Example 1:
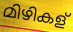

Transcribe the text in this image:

മിഴികള്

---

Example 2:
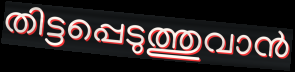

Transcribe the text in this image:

തിട്ടപ്പെടുത്തുവാൻ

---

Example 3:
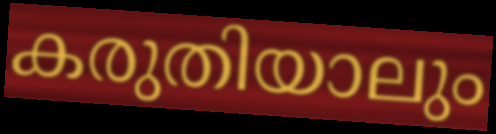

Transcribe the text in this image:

കരുതിയാലും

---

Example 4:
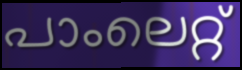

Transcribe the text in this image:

പാംലെറ്റ്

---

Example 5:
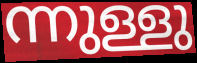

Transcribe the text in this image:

ന്നുള്ളു